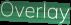
Overlay